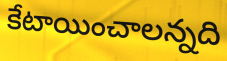
కేటాయించాలన్నది